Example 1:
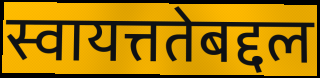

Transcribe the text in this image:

स्वायत्ततेबद्दल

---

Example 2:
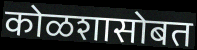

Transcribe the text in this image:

कोळशासोबत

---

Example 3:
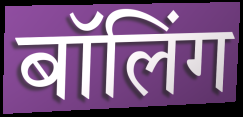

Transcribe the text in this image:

बॉलिंग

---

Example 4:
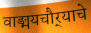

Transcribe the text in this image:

वाङ्मयचौर्याचे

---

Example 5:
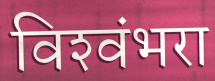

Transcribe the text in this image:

विश्वंभरा